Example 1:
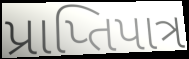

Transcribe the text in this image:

પ્રાપ્તિપાત્ર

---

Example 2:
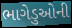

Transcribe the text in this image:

ભાગેડુઓની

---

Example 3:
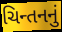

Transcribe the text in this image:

ચિન્તનનું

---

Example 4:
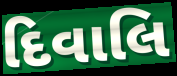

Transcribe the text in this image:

દિવાલિ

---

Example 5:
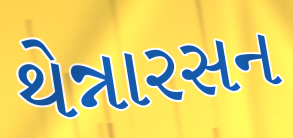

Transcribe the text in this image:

થેન્નારસન